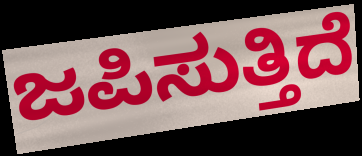
ಜಪಿಸುತ್ತಿದೆ